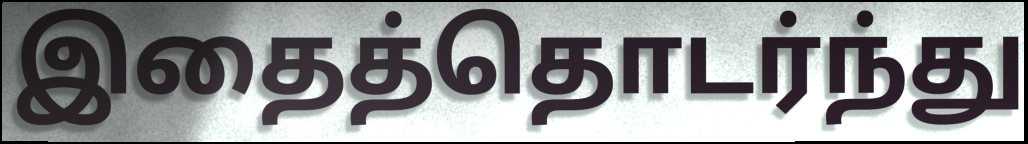
இதைத்தொடர்ந்து